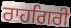
ਰਾਹਗਿਰੀ